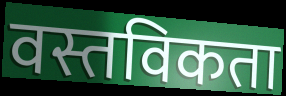
वस्तविकता